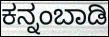
ಕನ್ನಂಬಾಡಿ